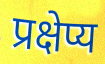
प्रक्षेप्य